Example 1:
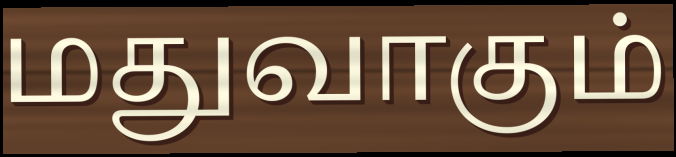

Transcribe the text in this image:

மதுவாகும்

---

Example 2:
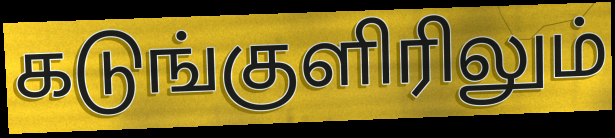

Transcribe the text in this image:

கடுங்குளிரிலும்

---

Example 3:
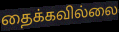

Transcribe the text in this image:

தைக்கவில்லை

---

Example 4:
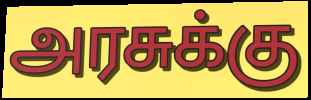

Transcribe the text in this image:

அரசுக்கு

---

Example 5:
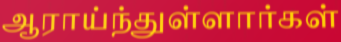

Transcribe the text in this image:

ஆராய்ந்துள்ளார்கள்